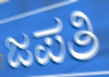
ಜಪತಿ